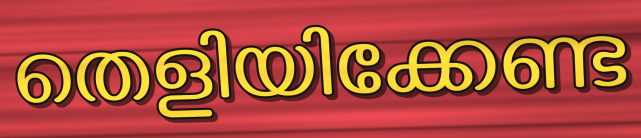
തെളിയിക്കേണ്ട